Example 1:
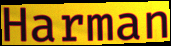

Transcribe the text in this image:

Harman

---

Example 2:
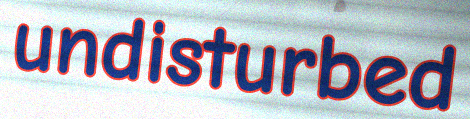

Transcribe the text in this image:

undisturbed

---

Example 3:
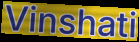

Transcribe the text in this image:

Vinshati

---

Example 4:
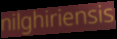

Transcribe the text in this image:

nilghiriensis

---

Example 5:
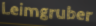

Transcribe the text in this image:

Leimgruber